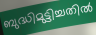
ബുദ്ധിമുട്ടിച്ചതിൽ